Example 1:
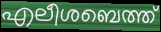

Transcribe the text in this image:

എലീശബെത്ത്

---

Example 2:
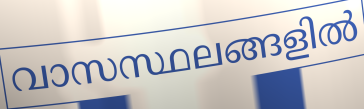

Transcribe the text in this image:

വാസസ്ഥലങ്ങളിൽ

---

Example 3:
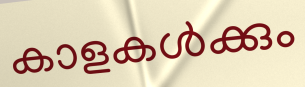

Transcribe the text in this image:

കാളകൾക്കും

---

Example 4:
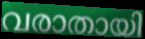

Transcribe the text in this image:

വരാതായി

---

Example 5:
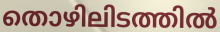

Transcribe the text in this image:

തൊഴിലിടത്തിൽ